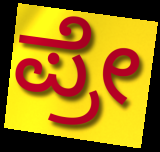
ಪ್ರೇ